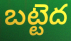
బట్టెద